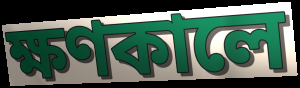
ক্ষণকালে